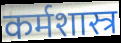
कर्मशास्त्र